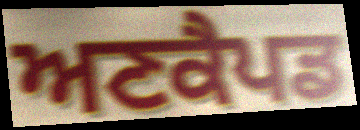
ਅਣਕੈਪਡ